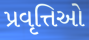
પ્રવૃત્તિઓ